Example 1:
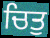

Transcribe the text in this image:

ਚਿਤੁ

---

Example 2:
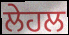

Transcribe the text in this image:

ਲੇਹਲ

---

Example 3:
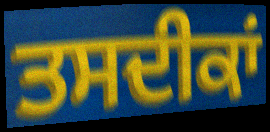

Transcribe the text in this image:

ਤਸਦੀਕਾਂ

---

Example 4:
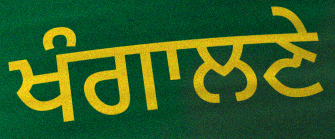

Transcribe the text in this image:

ਖੰਗਾਲਣੇ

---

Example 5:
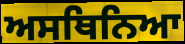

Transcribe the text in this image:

ਅਸਥਿਨਿਆ